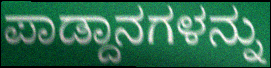
ಪಾಡ್ದಾನಗಳನ್ನು